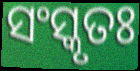
ସଂସ୍କୃତଃ